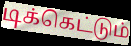
டிக்கெட்டும்